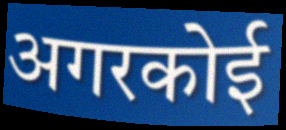
अगरकोई